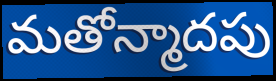
మతోన్మాదపు